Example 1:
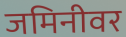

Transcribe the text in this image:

जमिनीवर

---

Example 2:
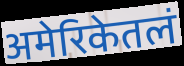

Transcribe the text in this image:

अमेरिकेतलं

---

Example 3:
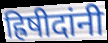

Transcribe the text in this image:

ह्रिषीदांनी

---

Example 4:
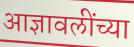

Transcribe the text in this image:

आज्ञावलींच्या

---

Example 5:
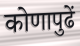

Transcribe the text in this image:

कोणापुढें